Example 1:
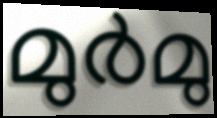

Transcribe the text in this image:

മുർമു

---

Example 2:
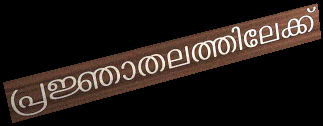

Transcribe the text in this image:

പ്രജ്ഞാതലത്തിലേക്ക്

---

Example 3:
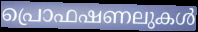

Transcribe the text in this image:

പ്രൊഫഷണലുകൾ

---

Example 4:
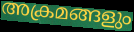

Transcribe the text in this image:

അക്രമങ്ങളും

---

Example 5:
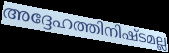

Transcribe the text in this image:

അദ്ദേഹത്തിനിഷ്ടമല്ല